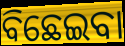
ବିଛେଇବା